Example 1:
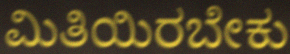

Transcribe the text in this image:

ಮಿತಿಯಿರಬೇಕು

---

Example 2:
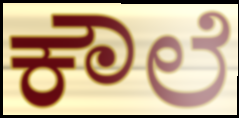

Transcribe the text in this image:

ಕೌಲೆ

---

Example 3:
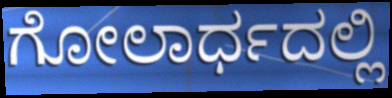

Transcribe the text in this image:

ಗೋಲಾರ್ಧದಲ್ಲಿ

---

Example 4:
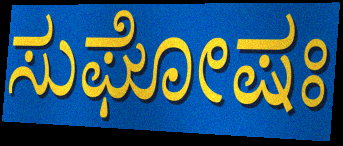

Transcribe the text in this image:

ಸುಘೋಷಃ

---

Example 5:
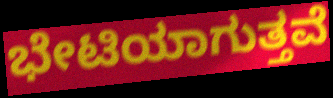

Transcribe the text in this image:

ಭೇಟಿಯಾಗುತ್ತವೆ